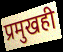
प्रमुखही